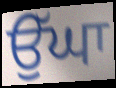
ਉੱਘਾ